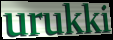
urukki